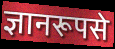
ज्ञानरूपसे